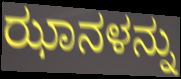
ಝಾನಳನ್ನು